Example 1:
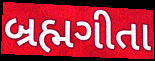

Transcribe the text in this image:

બ્રહ્મગીતા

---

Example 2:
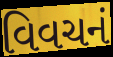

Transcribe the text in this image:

વિવચનં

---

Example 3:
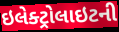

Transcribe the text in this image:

ઇલેક્ટ્રોલાઇટની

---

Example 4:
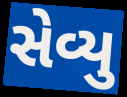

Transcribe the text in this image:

સેવ્યુ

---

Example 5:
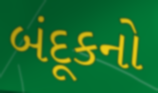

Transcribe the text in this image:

બંદૂકનો